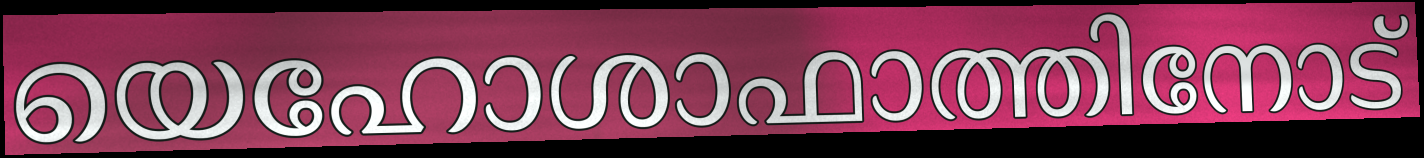
യെഹോശാഫാത്തിനോട്